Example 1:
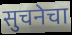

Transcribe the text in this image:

सुचनेचा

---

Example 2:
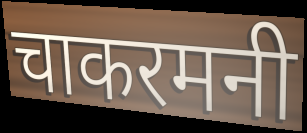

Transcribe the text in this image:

चाकरमनी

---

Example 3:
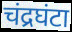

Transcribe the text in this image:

चंद्रघंटा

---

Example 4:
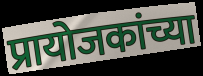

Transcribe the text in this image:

प्रायोजकांच्या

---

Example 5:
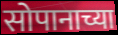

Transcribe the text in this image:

सोपानाच्या